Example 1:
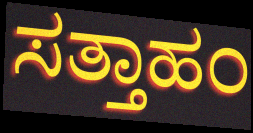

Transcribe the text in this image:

ಸತ್ತಾಹಂ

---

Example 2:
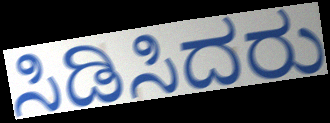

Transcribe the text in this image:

ಸಿಡಿಸಿದರು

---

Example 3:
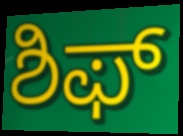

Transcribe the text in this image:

ಶಿಫ್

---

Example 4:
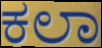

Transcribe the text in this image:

ಕಲಾ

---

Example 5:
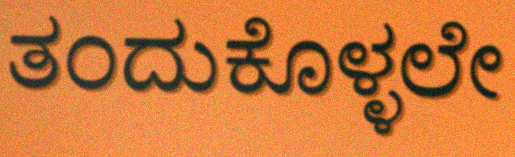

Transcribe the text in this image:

ತಂದುಕೊಳ್ಳಲೇ